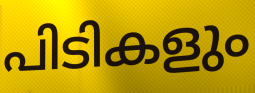
പിടികളും